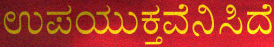
ಉಪಯುಕ್ತವೆನಿಸಿದೆ